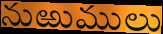
నుఱుములు